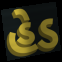
હેડ